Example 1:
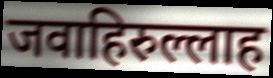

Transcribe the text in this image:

जवाहिरुल्लाह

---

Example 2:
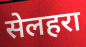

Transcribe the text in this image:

सेलहरा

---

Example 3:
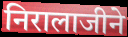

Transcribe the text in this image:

निरालाजीने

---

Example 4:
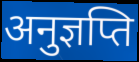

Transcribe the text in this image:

अनुज्ञप्ति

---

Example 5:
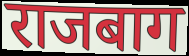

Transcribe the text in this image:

राजबाग